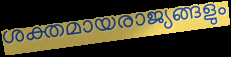
ശക്തമായരാജ്യങ്ങളും